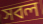
সবল